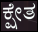
ಕ್ಷೇತ